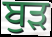
ਬੁੜ